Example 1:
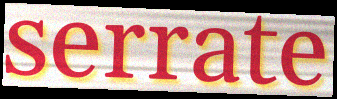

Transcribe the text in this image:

serrate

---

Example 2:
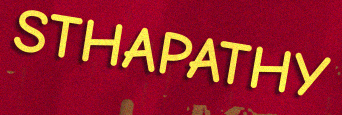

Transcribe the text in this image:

STHAPATHY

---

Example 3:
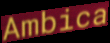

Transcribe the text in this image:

Ambica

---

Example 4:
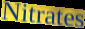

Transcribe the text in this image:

Nitrates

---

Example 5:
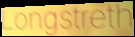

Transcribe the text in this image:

Longstreth